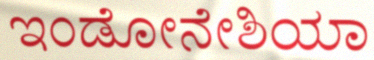
ಇಂಡೋನೇಶಿಯಾ